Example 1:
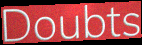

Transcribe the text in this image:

Doubts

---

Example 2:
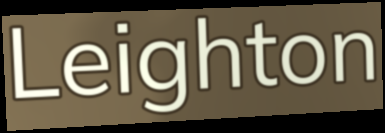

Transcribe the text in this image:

Leighton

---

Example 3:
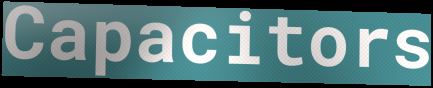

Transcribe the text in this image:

Capacitors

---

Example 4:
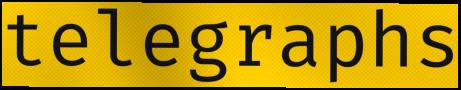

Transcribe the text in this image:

telegraphs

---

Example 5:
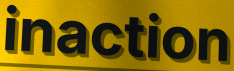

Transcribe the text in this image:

inaction